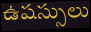
ఉషస్సులు